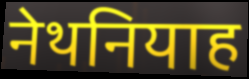
नेथनियाह